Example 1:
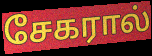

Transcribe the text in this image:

சேகரால்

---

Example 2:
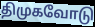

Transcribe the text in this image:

திமுகவோடு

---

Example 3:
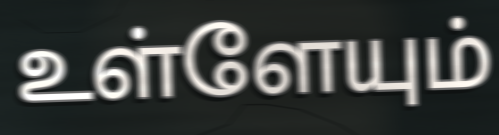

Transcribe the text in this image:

உள்ளேயும்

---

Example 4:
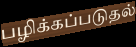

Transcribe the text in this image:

பழிக்கப்படுதல்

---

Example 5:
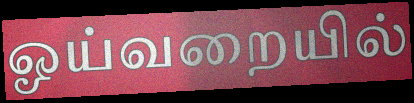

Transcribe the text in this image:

ஓய்வறையில்